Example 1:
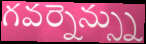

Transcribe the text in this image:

గవర్నెన్స్ను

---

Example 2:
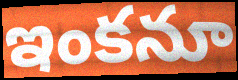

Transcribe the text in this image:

ఇంకనూ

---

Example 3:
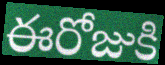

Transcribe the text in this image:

ఈరోజుకి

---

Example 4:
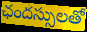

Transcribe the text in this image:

ఛందస్సులతో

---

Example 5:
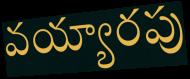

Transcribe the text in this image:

వయ్యారపు